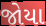
જોયા